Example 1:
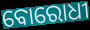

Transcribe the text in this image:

ବୋରୋଧୀ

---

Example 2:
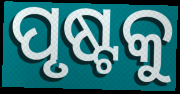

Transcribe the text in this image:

ପୃଷ୍ଟକୁ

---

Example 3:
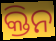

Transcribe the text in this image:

କ୍ତିନ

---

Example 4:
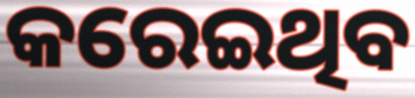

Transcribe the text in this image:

କରେଇଥିବ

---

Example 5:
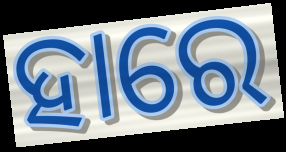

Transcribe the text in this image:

ହାରେ